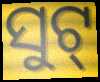
ସୁଟ୍